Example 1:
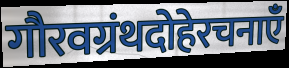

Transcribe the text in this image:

गौरवग्रंथदोहेरचनाएँ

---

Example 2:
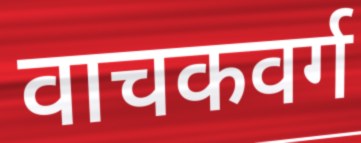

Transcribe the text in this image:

वाचकवर्ग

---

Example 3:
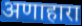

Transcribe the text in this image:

अणाहारा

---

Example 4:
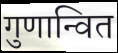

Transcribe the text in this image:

गुणान्वित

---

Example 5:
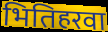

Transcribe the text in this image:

भितिहरवा